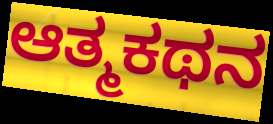
ಆತ್ಮಕಥನ